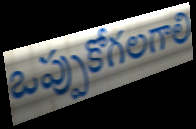
ఒప్పుకోగలగాలి